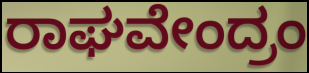
ರಾಘವೇಂದ್ರಂ